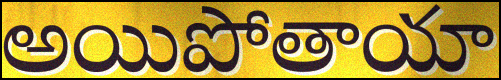
అయిపోతాయా